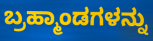
ಬ್ರಹ್ಮಾಂಡಗಳನ್ನು